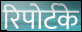
रिपोर्टके